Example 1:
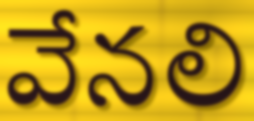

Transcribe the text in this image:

వేనలి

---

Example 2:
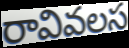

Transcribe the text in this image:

రావివలస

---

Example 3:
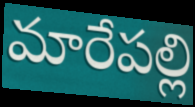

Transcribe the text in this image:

మారేపల్లి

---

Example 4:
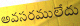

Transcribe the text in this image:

అవసరములేదు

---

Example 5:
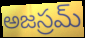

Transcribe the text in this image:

అజస్రమ్